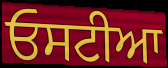
ਓਸਟੀਆ